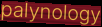
palynology